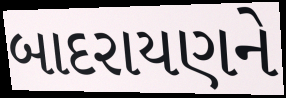
બાદરાયણને